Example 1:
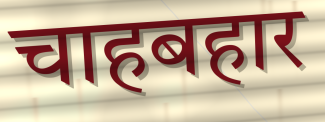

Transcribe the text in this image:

चाहबहार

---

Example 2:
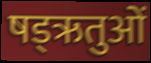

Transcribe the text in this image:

षड्ऋतुओं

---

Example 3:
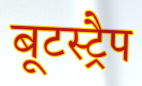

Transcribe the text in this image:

बूटस्ट्रैप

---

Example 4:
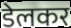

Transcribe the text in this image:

डेलकर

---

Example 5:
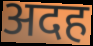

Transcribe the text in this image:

अदह